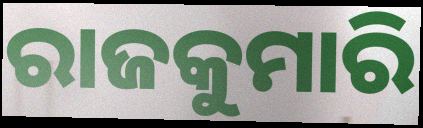
ରାଜକୁମାରି